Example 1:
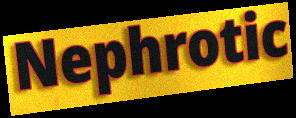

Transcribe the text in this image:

Nephrotic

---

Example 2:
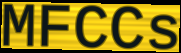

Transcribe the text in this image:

MFCCs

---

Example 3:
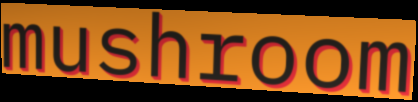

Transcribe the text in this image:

mushroom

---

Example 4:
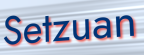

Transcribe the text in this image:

Setzuan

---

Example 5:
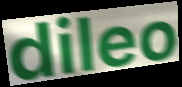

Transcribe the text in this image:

dileo